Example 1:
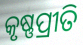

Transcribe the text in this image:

କୃଷ୍ଣପ୍ରୀତି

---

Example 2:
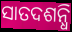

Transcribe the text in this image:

ସାତଦଶନ୍ଧି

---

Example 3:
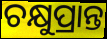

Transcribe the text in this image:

ଚକ୍ଷୁପ୍ରାନ୍ତ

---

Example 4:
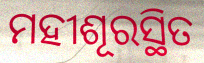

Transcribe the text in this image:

ମହୀଶୂରସ୍ଥିତ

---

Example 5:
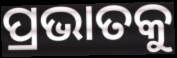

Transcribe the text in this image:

ପ୍ରଭାତକୁ